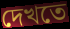
দেখতে